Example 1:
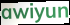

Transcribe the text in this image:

awiyun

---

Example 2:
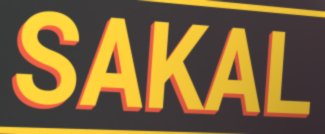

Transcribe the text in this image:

SAKAL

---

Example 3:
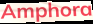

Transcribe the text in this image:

Amphora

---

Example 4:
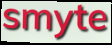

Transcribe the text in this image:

smyte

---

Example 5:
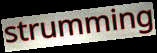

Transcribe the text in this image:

strumming